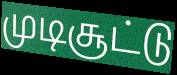
முடிசூட்டு